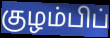
குழம்பிப்